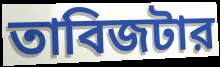
তাবিজটার